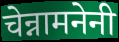
चेन्नामनेनी